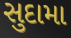
સુદામા